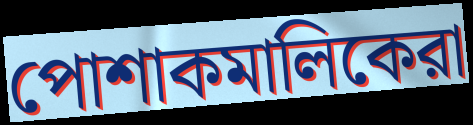
পোশাকমালিকেরা